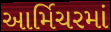
આર્મિચરમાં